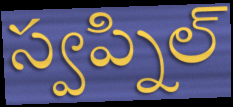
స్వప్నిల్